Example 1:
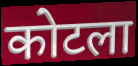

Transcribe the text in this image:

कोटला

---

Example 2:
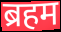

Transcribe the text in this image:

ब्रहम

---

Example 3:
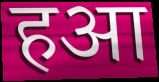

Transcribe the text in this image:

हआ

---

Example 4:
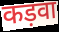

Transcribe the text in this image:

कड़वा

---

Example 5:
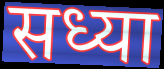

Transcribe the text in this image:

सध्या